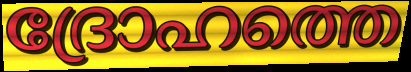
ദ്രോഹത്തെ